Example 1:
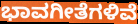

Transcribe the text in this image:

ಭಾವಗೀತೆಗಳಿವೆ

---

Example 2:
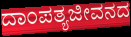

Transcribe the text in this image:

ದಾಂಪತ್ಯಜೀವನದ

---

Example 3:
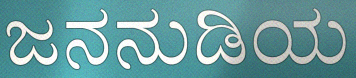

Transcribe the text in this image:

ಜನನುಡಿಯ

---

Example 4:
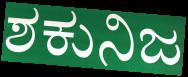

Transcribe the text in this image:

ಶಕುನಿಜ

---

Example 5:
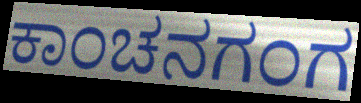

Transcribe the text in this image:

ಕಾಂಚನಗಂಗ